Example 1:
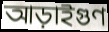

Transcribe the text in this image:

আড়াইগুণ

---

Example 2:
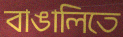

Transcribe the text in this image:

বাঙালিতে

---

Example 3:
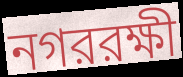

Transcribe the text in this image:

নগররক্ষী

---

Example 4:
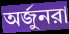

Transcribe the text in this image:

অর্জুনরা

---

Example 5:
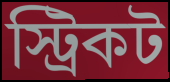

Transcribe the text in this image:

স্ট্রিকট